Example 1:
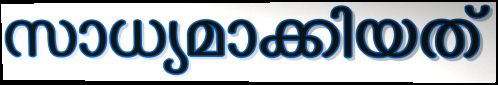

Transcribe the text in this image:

സാധ്യമാക്കിയത്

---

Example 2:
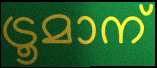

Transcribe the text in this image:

ട്രൂമാന്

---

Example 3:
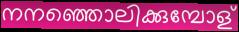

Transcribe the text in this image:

നനഞ്ഞൊലിക്കുമ്പോള്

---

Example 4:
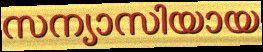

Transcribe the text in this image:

സന്യാസിയായ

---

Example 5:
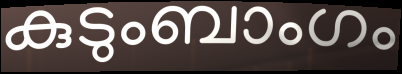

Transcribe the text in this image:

കുടുംബാംഗം